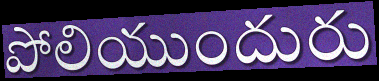
పోలియుందురు